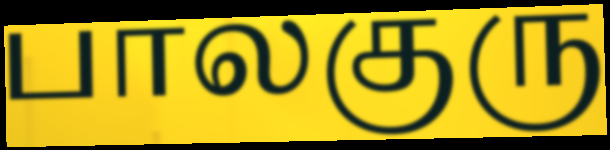
பாலகுரு